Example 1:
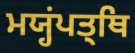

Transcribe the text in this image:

ਮਯ੍ਹਂਪਤ੍ਥਿ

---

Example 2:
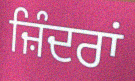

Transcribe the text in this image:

ਜ਼ਿੰਦਰਾਂ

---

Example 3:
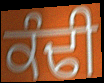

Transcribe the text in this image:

ਕੰਢੀ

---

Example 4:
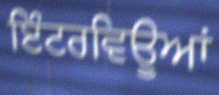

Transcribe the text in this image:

ਇੰਟਰਵਿਊਆਂ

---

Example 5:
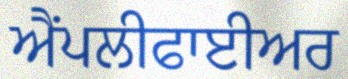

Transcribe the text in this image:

ਐੰਪਲੀਫਾਈਅਰ